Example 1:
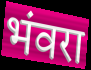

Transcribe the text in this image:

भंवरा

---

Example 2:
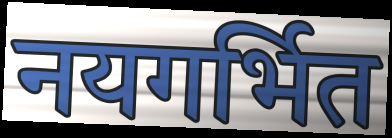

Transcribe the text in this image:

नयगर्भित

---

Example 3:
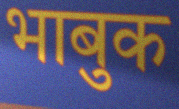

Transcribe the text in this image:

भाबुक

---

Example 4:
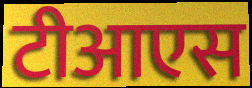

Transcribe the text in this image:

टीआएस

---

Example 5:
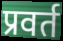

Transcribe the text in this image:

प्रवर्त